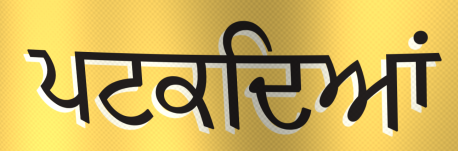
ਪਟਕਦਿਆਂ